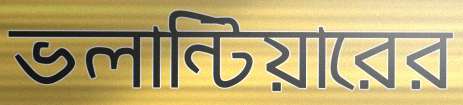
ভলান্টিয়ারের